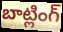
బాట్లింగ్